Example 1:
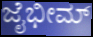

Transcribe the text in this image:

ಜೈಭೀಮ್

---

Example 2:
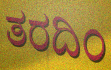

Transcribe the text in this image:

ತರದಿಂ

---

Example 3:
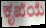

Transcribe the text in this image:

ಕೃಪೆಯೆ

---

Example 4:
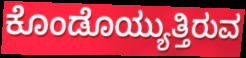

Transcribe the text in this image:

ಕೊಂಡೊಯ್ಯುತ್ತಿರುವ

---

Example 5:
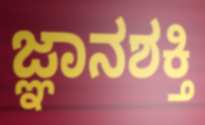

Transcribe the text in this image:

ಜ್ಞಾನಶಕ್ತಿ